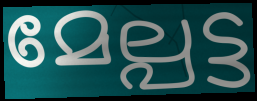
മേല്പട്ട